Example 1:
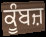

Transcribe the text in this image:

ਕੂੰਬਜ਼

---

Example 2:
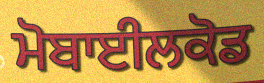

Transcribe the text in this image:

ਮੋਬਾਈਲਕੋਡ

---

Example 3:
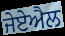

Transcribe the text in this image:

ਜੇਏਐਲ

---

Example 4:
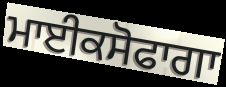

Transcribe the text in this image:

ਮਾਈਕਸੋਫਾਗਾ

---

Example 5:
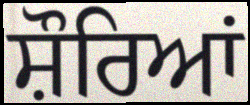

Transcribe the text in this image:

ਸ਼ੌਰਿਆਂ